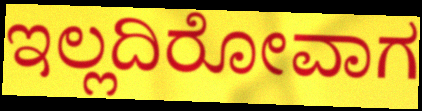
ಇಲ್ಲದಿರೋವಾಗ